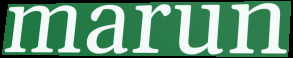
marun